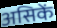
असिकें